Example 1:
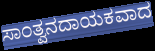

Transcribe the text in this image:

ಸಾಂತ್ವನದಾಯಕವಾದ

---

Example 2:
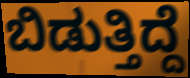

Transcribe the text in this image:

ಬಿಡುತ್ತಿದ್ದೆ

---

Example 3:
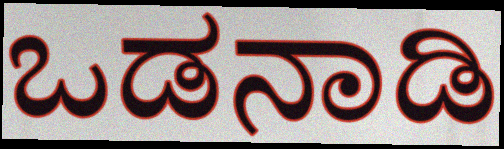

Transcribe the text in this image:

ಒಡನಾಡಿ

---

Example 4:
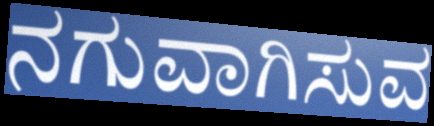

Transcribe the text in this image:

ನಗುವಾಗಿಸುವ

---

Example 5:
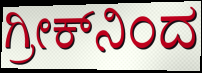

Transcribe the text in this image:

ಗ್ರೀಕ್‌ನಿಂದ